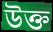
উক্ত